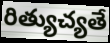
రిత్యుచ్యతే